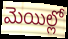
మెయిల్లో